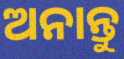
ଅନାନ୍ତୁ